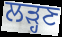
ਲੜ੍ਹਣ